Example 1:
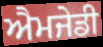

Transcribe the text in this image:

ਐਮਜੇਡੀ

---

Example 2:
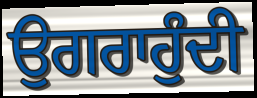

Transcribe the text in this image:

ਉਗਰਾਹੁੰਦੀ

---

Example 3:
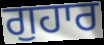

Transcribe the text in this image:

ਗੁਹਾਰ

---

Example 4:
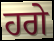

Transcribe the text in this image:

ਹਗੇ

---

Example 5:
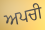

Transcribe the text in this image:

ਅਪਚੀ